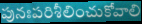
పునఃపరిశీలించుకోవాలి